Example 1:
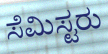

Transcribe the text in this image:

ಸೆಮಿಸ್ಟರು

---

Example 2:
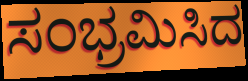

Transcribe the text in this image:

ಸಂಭ್ರಮಿಸಿದ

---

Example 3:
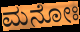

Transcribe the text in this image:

ಮನೋಃ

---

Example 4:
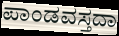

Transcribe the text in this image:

ಪಾಂಡವಸ್ತದಾ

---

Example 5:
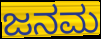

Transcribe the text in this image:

ಜನಮ